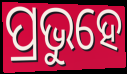
ପ୍ରଭୁହେ